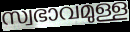
സ്വഭാവമുള്ള